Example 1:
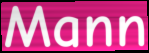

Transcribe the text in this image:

Mann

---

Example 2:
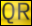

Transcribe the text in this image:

QR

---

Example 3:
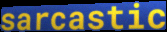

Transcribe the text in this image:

sarcastic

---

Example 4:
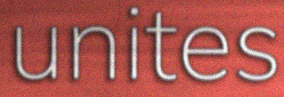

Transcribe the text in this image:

unites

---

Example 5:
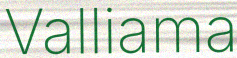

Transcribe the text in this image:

Valliama